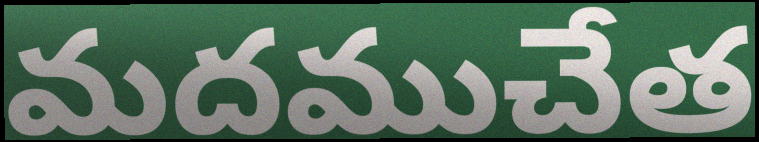
మదముచేత